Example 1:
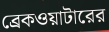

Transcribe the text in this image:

ব্রেকওয়াটারের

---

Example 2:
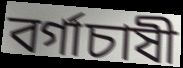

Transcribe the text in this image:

বর্গাচাষী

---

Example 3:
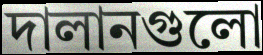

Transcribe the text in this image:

দালানগুলো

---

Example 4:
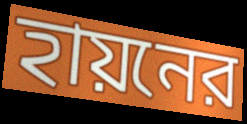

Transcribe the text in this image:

হায়নের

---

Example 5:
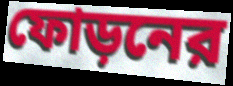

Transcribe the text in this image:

ফোড়নের